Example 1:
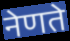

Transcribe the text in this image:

नेणते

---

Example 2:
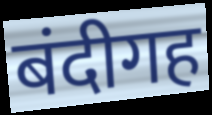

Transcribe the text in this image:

बंदीगह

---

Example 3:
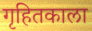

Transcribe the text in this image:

गृहितकाला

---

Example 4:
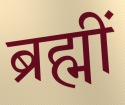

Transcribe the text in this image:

ब्रह्मीं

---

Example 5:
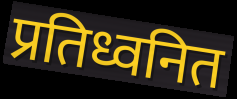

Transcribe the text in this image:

प्रतिध्वनित